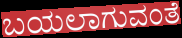
ಬಯಲಾಗುವಂತೆ